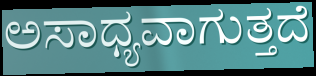
ಅಸಾಧ್ಯವಾಗುತ್ತದೆ